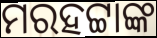
ମରହଟ୍ଟାଙ୍କ